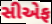
સીએફ